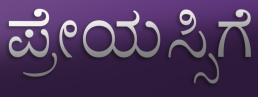
ಪ್ರೇಯಸ್ಸಿಗೆ